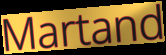
Martand